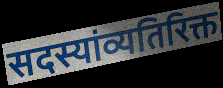
सदस्यांव्यतिरिक्त